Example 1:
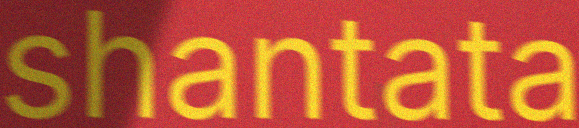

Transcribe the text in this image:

shantata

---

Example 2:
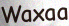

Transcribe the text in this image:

Waxaa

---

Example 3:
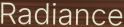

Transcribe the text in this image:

Radiance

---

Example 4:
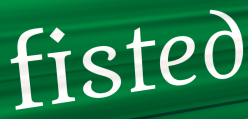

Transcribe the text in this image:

fisted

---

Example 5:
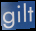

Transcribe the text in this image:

gilt